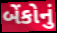
બેંકોનું